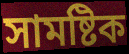
সামষ্টিক